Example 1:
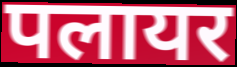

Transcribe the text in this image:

पलायर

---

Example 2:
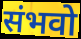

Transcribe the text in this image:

संभवो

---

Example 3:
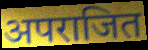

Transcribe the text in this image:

अपराजित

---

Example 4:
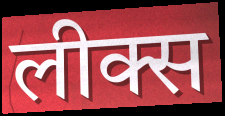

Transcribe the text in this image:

लीक्स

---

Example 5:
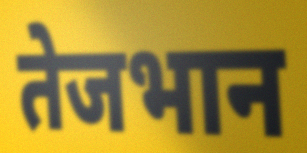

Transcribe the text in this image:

तेजभान